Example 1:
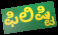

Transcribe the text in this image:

ಫಿಲಿಷ್ಟಿ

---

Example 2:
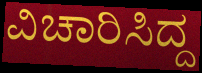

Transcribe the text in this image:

ವಿಚಾರಿಸಿದ್ದ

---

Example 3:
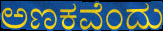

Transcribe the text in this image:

ಅಣಕವೆಂದು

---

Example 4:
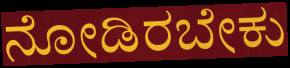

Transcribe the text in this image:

ನೋಡಿರಬೇಕು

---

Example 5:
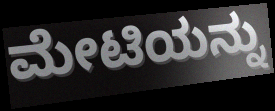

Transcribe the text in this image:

ಮೇಟಿಯನ್ನು